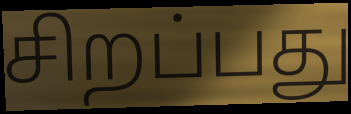
சிறப்பது